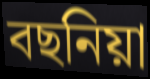
বছনিয়া